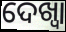
ଦେଖ୍ବା